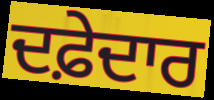
ਦਫ਼ੇਦਾਰ